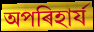
অপৰিহাৰ্য